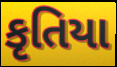
કૃતિયા